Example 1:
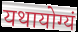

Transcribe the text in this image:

यथायोग्यं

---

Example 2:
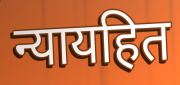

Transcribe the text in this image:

न्यायहित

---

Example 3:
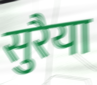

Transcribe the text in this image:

सुरैया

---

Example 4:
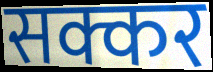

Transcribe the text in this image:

सक्कर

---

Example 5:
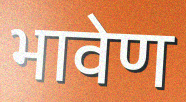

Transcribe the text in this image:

भावेण